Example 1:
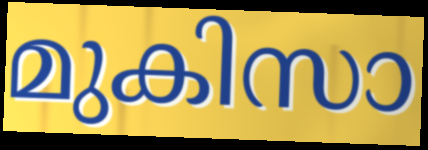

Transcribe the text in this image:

മുകിസാ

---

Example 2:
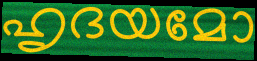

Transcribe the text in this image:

ഹൃദയമോ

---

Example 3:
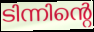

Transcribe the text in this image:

ടിന്നിന്റെ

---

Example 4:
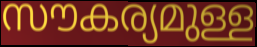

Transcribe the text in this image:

സൗകര്യമുള്ള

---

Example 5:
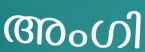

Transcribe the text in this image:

അംഗി